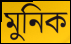
মুনিক